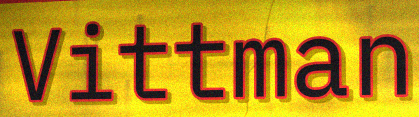
Vittman